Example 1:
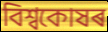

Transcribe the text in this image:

বিশ্বকোষৰ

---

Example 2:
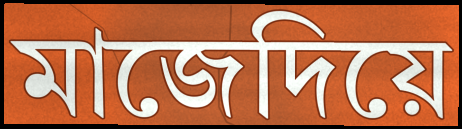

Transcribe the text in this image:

মাজেদিয়ে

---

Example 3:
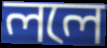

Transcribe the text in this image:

ললে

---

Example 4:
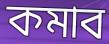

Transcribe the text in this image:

কমাব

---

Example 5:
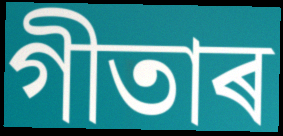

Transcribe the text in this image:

গীতাৰ